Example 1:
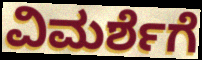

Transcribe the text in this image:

ವಿಮರ್ಶೆಗೆ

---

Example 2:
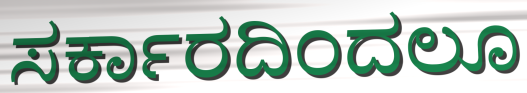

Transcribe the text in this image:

ಸರ್ಕಾರದಿಂದಲೂ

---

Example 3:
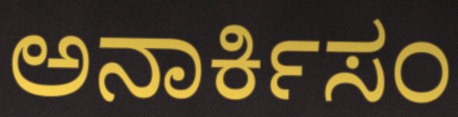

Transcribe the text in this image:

ಅನಾರ್ಕಿಸಂ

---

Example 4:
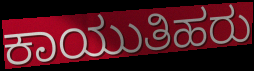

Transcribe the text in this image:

ಕಾಯುತಿಹರು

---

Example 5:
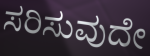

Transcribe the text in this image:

ಸರಿಸುವುದೇ